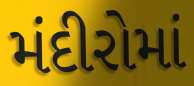
મંદીરોમાં